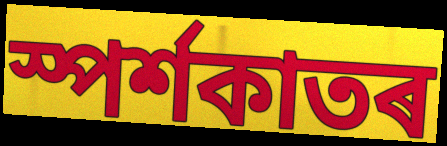
স্পৰ্শকাতৰ